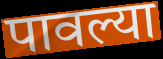
पावल्या